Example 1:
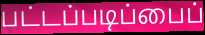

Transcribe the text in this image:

பட்டப்படிப்பைப்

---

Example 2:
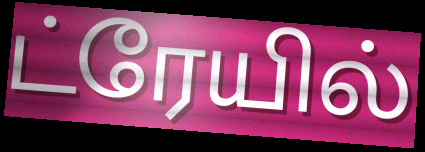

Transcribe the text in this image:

ட்ரேயில்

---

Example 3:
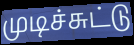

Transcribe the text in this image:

முடிச்சுட்டு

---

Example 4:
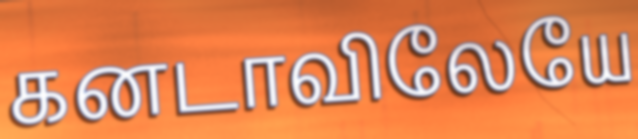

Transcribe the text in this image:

கனடாவிலேயே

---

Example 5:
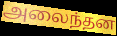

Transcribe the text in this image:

அலைந்தன